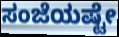
ಸಂಜೆಯಷ್ಟೇ